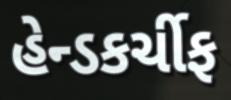
હેન્ડકર્ચીફ